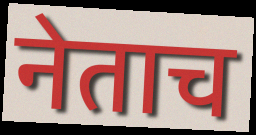
नेताच